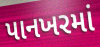
પાનખરમાં